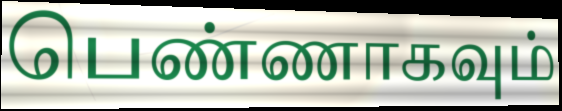
பெண்ணாகவும்